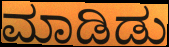
ಮಾಡಿಡು